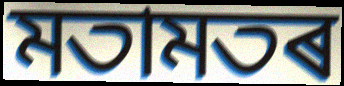
মতামতৰ